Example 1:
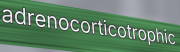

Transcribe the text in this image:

adrenocorticotrophic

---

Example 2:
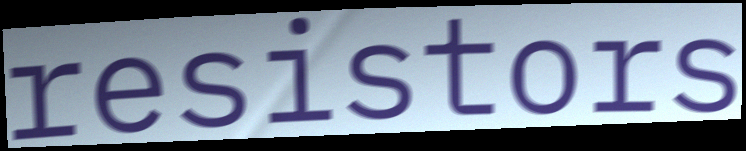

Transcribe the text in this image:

resistors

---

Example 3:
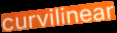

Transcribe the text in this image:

curvilinear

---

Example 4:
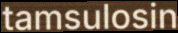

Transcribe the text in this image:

tamsulosin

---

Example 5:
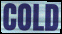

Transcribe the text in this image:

COLD